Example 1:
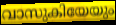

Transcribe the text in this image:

വാസുകിയേയും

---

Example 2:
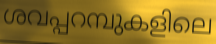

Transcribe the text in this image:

ശവപ്പറമ്പുകളിലെ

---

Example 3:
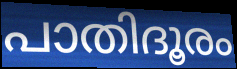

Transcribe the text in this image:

പാതിദൂരം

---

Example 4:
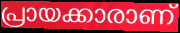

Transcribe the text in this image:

പ്രായക്കാരാണ്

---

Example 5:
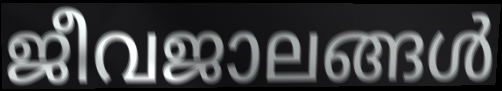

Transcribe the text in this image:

ജീവജാലങ്ങൾ